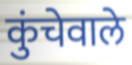
कुंचेवाले